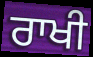
ਰਾਖੀ